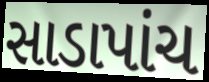
સાડાપાંચ